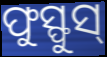
ଫୁସ୍ଫୁସ୍